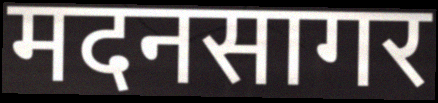
मदनसागर